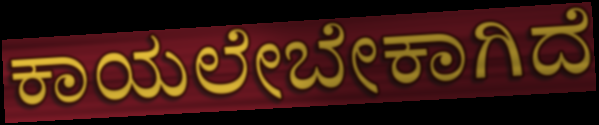
ಕಾಯಲೇಬೇಕಾಗಿದೆ